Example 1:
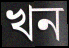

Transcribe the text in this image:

খন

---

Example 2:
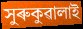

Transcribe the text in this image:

সুৰুকুৱালাই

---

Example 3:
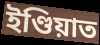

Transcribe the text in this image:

ইণ্ডিয়াত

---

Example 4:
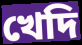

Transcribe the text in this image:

খেদি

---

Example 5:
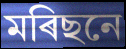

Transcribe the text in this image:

মৰিছনে